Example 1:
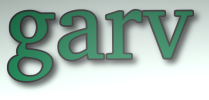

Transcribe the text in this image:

garv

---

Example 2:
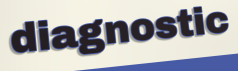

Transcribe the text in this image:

diagnostic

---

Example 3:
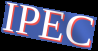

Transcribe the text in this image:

IPEC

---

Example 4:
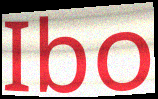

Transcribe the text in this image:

Ibo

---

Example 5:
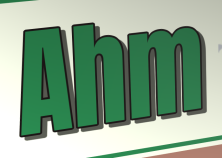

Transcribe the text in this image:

Ahm